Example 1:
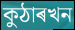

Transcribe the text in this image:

কুঠাৰখন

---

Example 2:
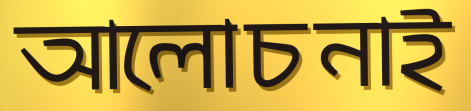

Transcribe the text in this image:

আলোচনাই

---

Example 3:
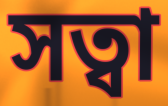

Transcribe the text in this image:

সত্বা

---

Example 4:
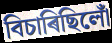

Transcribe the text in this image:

বিচাৰিছিলোঁ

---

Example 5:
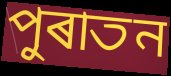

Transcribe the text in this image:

পুৰাতন